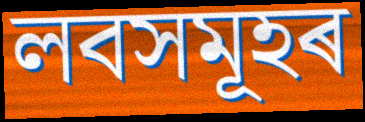
লবসমূহৰ